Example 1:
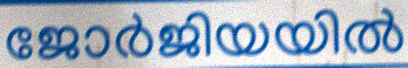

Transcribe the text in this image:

ജോർജിയയിൽ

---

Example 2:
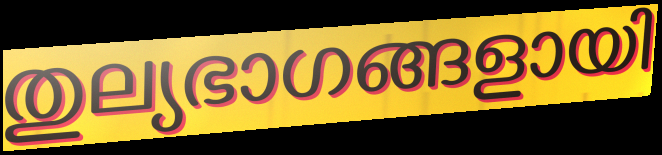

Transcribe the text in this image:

തുല്യഭാഗങ്ങളായി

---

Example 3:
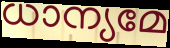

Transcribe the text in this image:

ധാന്യമേ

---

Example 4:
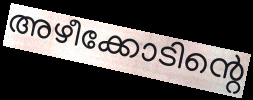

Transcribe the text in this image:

അഴീക്കോടിന്റെ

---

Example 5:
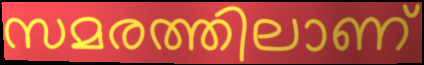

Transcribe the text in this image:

സമരത്തിലാണ്